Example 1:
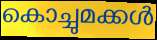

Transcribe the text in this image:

കൊച്ചുമക്കൾ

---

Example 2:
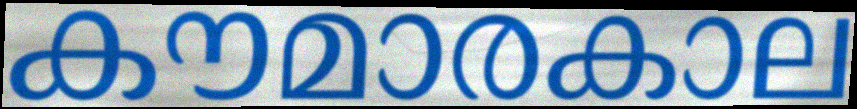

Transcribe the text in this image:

കൗമാരകാല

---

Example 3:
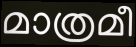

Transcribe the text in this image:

മാത്രമീ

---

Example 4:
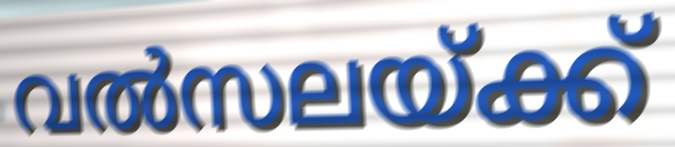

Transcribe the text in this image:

വൽസലയ്ക്ക്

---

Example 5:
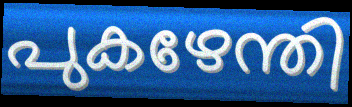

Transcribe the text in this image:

പുകഴേന്തി